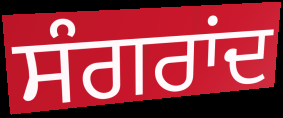
ਸੰਗਰਾਂਦ